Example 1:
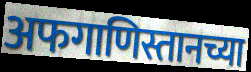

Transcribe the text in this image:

अफगाणिस्तानच्या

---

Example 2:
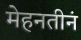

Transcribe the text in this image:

मेहनतीनं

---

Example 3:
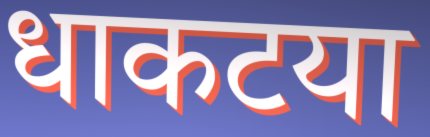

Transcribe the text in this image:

धाकटया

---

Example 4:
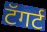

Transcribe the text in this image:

टॅगर्ट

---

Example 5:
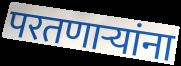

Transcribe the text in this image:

परतणाऱ्यांना